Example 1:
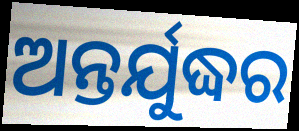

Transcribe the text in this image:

ଅନ୍ତର୍ଯୁଦ୍ଧର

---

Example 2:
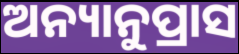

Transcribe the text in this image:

ଅନ୍ୟାନୁପ୍ରାସ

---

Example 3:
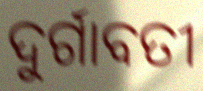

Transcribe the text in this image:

ଦୁର୍ଗାବତୀ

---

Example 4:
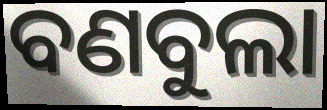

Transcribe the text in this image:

ବଣବୁଲା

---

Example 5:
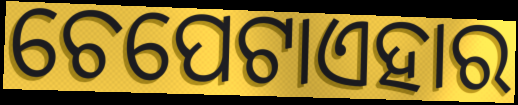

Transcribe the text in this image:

ଚେପେଟାଏହାର